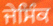
ਜੇਸਿੰਕ